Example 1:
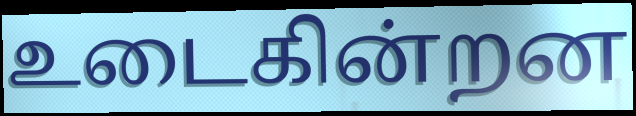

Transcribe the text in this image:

உடைகின்றன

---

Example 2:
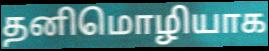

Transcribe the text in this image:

தனிமொழியாக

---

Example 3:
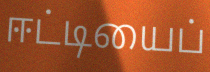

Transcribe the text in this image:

ஈட்டியைப்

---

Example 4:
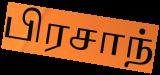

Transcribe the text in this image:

பிரசாந்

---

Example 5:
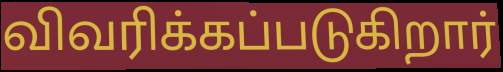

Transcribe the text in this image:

விவரிக்கப்படுகிறார்